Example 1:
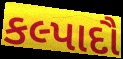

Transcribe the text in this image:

કલ્પાદૌ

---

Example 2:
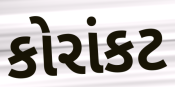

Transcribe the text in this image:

કોરાંકટ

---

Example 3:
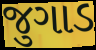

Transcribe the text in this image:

જુગાડ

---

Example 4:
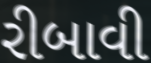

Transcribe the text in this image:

રીબાવી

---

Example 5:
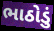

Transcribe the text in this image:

ભાઠોડું